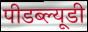
पीडब्ल्यूडी